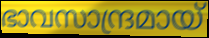
ഭാവസാന്ദ്രമായ്